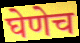
घेणेच